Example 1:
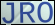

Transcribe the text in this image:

JRO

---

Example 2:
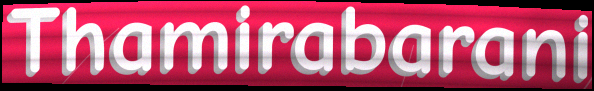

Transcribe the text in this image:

Thamirabarani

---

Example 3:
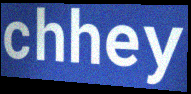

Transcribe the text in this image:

chhey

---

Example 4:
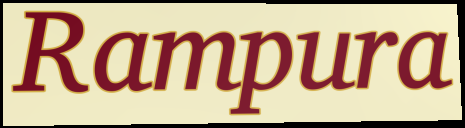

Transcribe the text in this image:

Rampura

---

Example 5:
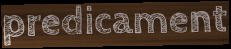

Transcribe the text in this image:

predicament